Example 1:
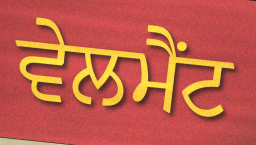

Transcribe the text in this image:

ਵੇਲਮੈਂਟ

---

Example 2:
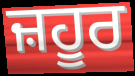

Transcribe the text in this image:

ਜ਼ਹੂਰ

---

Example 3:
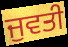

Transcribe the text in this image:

ਜੁਵਤੀ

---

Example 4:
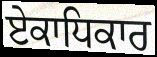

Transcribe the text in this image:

ਏਕਾਧਿਕਾਰ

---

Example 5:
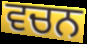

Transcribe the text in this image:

ਵਚਨ